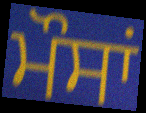
ਮੌਸਾਂ